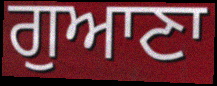
ਗੁਆਣਾ